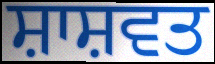
ਸ਼ਾਸ਼ਵਤ